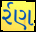
ર્રણ